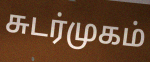
சுடர்முகம்